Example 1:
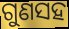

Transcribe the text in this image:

ଗୁଣସହ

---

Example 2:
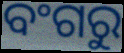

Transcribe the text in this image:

ବଂଗରୁ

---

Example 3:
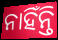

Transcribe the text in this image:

ନାହିଁନ୍ତି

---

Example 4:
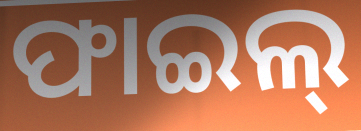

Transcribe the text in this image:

ଫାଇଲ୍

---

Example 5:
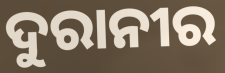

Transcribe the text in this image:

ଦୁରାନୀର